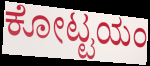
ಕೋಟ್ಟಯಂ